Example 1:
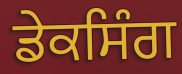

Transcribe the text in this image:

ਡੇਕਸਿੰਗ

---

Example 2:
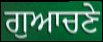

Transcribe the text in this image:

ਗੁਆਚਣੇ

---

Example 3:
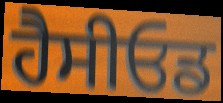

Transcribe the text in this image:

ਹੈਸੀਓਡ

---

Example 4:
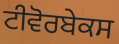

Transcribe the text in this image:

ਟੀਵੋਰਬੇਕਸ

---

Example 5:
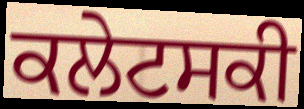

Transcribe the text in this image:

ਕਲੇਟਸਕੀ